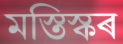
মস্তিস্কৰ